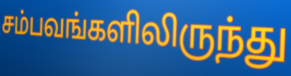
சம்பவங்களிலிருந்து